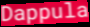
Dappula